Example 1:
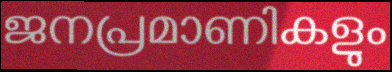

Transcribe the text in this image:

ജനപ്രമാണികളും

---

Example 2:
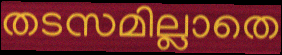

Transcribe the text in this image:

തടസമില്ലാതെ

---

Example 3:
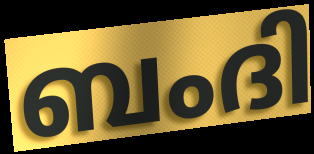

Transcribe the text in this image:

ബംദി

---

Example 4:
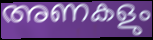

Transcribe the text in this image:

അണകളും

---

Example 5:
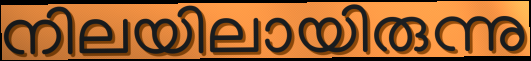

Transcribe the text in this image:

നിലയിലായിരുന്നു